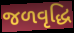
જળવૃદ્ધિ